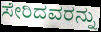
ಸೇರಿದವರನ್ನು